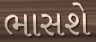
ભાસશે